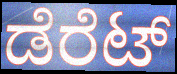
ಡೆರೆಟ್